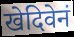
खेदिवेनं